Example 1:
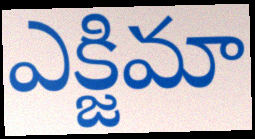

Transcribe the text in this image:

ఎక్జిమా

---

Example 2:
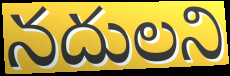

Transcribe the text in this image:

నదులని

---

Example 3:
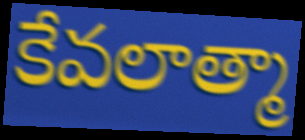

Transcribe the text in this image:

కేవలాత్మా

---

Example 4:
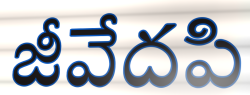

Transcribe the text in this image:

జీవేదపి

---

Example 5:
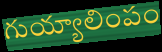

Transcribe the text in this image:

గుయ్యాలింపం